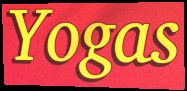
Yogas